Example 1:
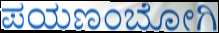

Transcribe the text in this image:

ಪಯಣಂಬೋಗಿ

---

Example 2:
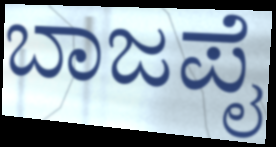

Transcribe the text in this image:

ಬಾಜಪೈ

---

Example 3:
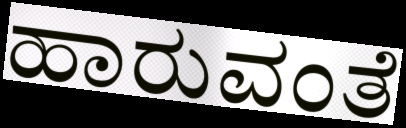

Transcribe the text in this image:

ಹಾರುವಂತೆ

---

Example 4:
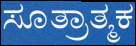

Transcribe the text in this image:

ಸೂತ್ರಾತ್ಮಕ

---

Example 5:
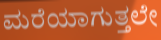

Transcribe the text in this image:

ಮರೆಯಾಗುತ್ತಲೇ